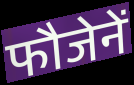
फौजेनें